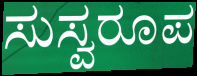
ಸುಸ್ವರೂಪ